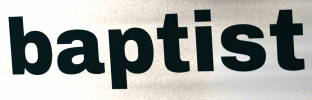
baptist